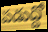
పడుద్దో